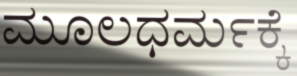
ಮೂಲಧರ್ಮಕ್ಕೆ